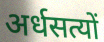
अर्धसत्यों